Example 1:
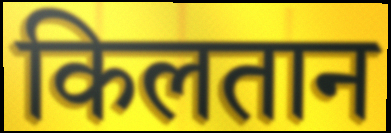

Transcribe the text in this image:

किलतान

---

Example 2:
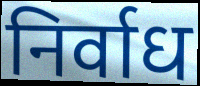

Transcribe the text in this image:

निर्वाध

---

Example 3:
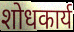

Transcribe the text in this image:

शोधकार्य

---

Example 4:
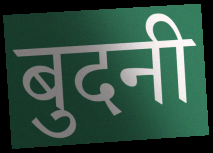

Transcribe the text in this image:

बुदनी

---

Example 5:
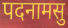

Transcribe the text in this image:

पदनामसु